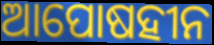
ଆପୋଷହୀନ